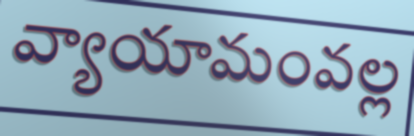
వ్యాయామంవల్ల